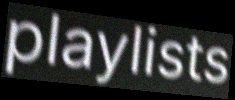
playlists